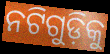
ନଟିଗୁଡ଼ିକୁ